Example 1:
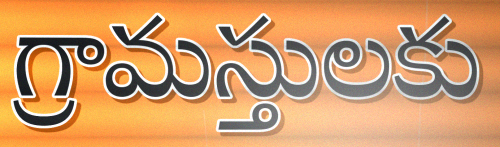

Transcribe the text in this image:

గ్రామస్తులకు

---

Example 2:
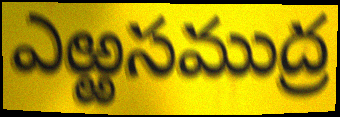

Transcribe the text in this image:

ఎఱ్ఱసముద్ర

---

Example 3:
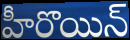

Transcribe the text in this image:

హీరొయిన్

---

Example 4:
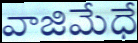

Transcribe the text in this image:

వాజిమేధే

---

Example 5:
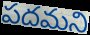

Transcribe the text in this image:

పదమని